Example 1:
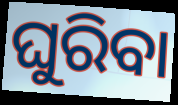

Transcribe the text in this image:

ଘୁରିବା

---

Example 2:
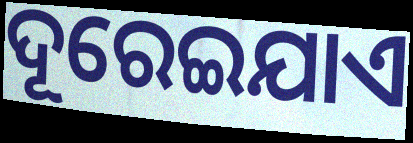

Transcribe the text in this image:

ଦୂରେଇଯାଏ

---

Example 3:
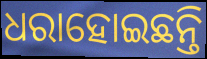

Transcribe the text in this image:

ଧରାହୋଇଛନ୍ତି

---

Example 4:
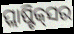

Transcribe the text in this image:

ପ୍ଲାଷ୍ଟିକ୍‌ସର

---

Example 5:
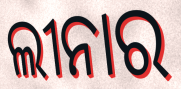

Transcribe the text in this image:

ଲୀନାର